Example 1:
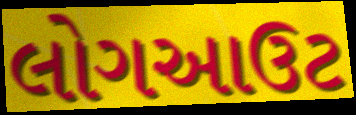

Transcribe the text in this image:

લોગઆઉટ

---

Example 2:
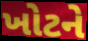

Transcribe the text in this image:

ખોટને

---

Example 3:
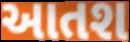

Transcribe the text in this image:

આતશ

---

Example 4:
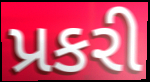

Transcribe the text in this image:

પ્રકરી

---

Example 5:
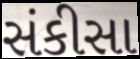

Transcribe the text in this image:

સંકીસા